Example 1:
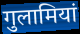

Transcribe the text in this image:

गुलामियां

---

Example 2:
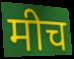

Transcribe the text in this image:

मीच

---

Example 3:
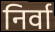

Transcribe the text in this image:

निर्वा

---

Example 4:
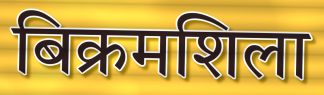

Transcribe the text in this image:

बिक्रमशिला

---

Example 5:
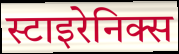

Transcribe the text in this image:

स्टाइरेनिक्स